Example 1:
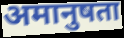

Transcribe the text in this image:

अमानुषता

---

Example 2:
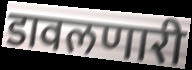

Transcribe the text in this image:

डावलणारी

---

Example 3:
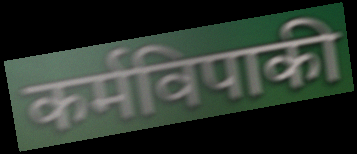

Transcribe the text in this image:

कर्मविपाकी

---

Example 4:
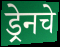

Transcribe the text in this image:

ड्रेनचे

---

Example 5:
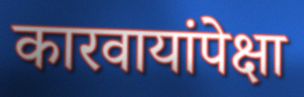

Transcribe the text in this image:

कारवायांपेक्षा